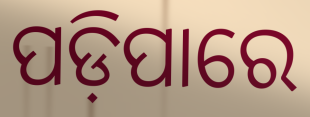
ପଡ଼ିପାରେ